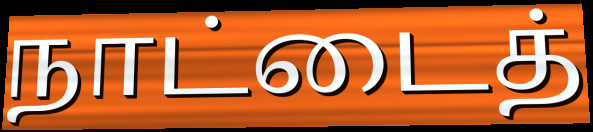
நாட்டைத்